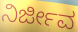
ನಿರ್ಜೀವ